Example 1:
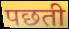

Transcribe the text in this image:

पछती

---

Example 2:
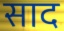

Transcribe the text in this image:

साद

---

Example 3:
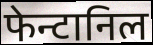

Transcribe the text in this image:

फेन्टानिल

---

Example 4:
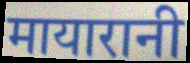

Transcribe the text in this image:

मायारानी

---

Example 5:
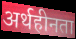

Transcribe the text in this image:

अर्थहीनता